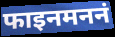
फाइनमननं